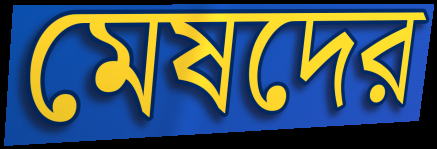
মেষদের